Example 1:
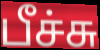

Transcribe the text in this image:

பீச்சு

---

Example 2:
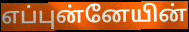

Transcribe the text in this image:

எப்புன்னேயின்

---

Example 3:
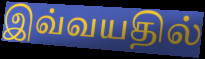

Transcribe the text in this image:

இவ்வயதில்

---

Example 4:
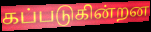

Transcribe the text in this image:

கப்படுகின்றன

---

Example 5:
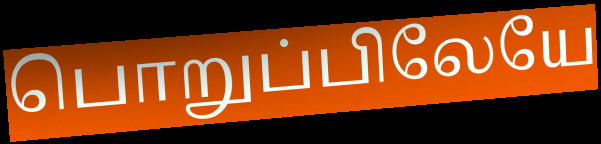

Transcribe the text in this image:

பொறுப்பிலேயே